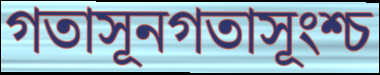
গতাসূনগতাসূংশ্চ